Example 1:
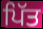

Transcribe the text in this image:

ਪਿੱਤ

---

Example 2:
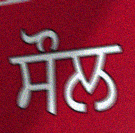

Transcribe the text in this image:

ਸੌਲ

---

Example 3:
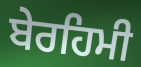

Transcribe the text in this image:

ਬੇਰਹਿਮੀ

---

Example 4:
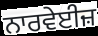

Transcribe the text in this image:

ਨਾਰਵੇਈਜ਼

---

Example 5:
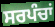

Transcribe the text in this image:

ਸਰਪੰਚਾਂ